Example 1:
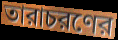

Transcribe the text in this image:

তারাচরণের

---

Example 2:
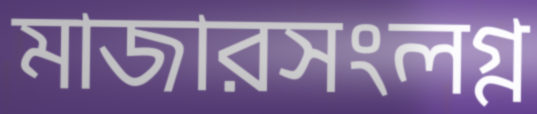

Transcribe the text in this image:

মাজারসংলগ্ন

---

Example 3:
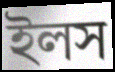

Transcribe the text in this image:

ইলস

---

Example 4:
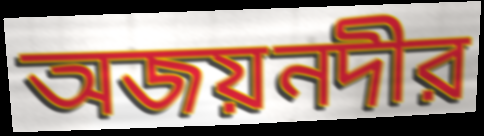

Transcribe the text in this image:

অজয়নদীর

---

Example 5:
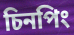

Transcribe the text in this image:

চিনপিং